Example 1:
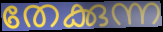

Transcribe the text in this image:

തേക്കുന്ന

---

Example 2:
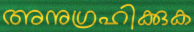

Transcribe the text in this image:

അനുഗ്രഹിക്കുക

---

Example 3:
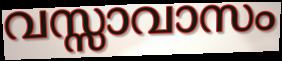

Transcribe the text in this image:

വസ്സാവാസം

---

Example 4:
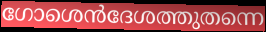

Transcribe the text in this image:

ഗോശെൻദേശത്തുതന്നെ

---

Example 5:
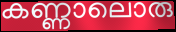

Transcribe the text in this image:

കണ്ണാലൊരു